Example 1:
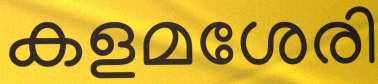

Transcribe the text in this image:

കളമശേരി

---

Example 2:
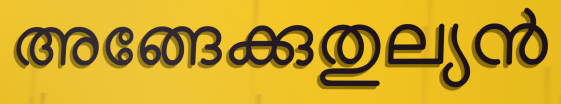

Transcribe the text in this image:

അങ്ങേക്കുതുല്യൻ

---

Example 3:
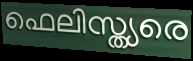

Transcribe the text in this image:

ഫെലിസ്ത്യരെ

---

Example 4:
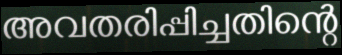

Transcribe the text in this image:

അവതരിപ്പിച്ചതിന്റെ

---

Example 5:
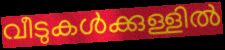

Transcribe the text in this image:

വീടുകൾക്കുള്ളിൽ